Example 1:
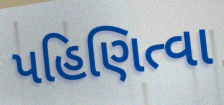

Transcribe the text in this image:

પહિણિત્વા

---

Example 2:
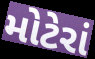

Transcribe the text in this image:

મોટેરાં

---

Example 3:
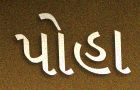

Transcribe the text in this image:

પોહા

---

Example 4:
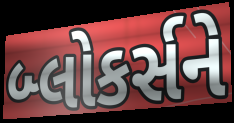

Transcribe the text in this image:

બ્લોકર્સને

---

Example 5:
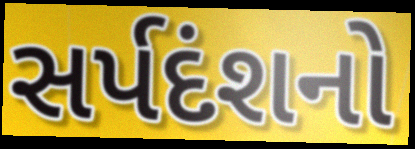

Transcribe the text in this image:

સર્પદંશનો